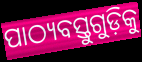
ପାଠ୍ୟବସ୍ତୁଗୁଡ଼ିକୁ